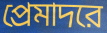
প্রেমাদরে